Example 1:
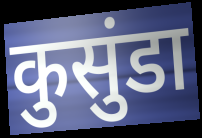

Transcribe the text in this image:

कुसुंडा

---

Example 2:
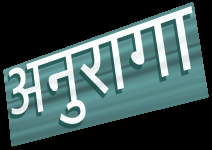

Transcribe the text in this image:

अनुरागा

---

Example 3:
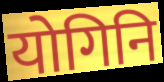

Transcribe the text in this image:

योगिनि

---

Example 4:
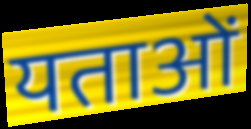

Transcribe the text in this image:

यताओं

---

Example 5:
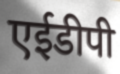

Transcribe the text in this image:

एईडीपी